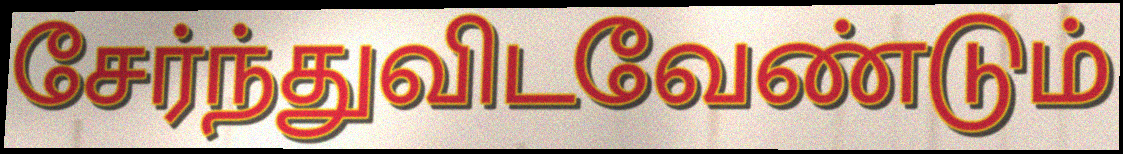
சேர்ந்துவிடவேண்டும்